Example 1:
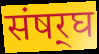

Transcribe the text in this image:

संषर्घ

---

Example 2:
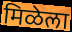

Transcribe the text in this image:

मिळेला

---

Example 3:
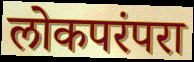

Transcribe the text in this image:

लोकपरंपरा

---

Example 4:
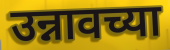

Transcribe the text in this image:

उन्नावच्या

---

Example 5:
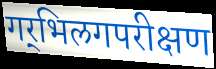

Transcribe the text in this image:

गर्भिलगपरीक्षण